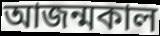
আজন্মকাল